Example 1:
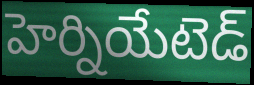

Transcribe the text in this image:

హెర్నియేటెడ్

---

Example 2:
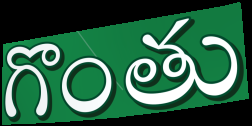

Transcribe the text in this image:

గొంతు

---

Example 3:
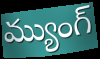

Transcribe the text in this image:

మ్యుంగ్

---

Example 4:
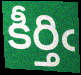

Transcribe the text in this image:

కీర్తిఁ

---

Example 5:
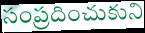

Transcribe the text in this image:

సంప్రదించుకుని